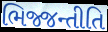
ભિજ્જન્તીતિ